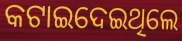
କଟାଇଦେଇଥିଲେ